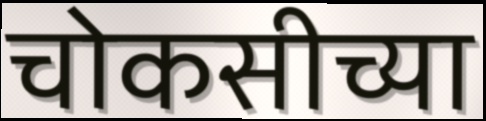
चोकसीच्या